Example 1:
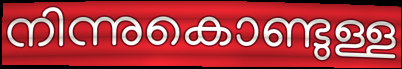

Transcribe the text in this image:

നിന്നുകൊണ്ടുള്ള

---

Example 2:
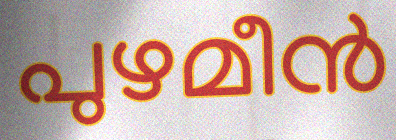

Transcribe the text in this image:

പുഴമീൻ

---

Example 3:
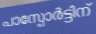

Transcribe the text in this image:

പാസ്പോർട്ടിന്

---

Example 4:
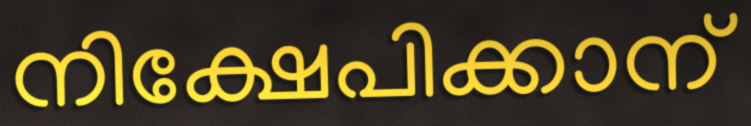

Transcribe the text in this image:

നിക്ഷേപിക്കാന്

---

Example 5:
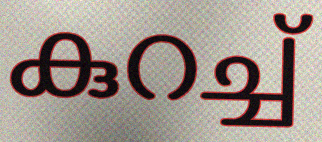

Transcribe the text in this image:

കുറച്ച്